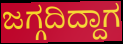
ಜಗ್ಗದಿದ್ದಾಗ